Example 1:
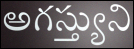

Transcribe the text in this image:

అగస్త్యుని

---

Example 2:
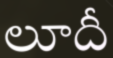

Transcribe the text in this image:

లూదీ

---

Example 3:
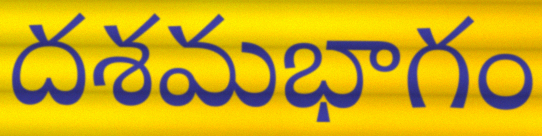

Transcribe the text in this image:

దశమభాగం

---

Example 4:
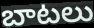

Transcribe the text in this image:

బాటలు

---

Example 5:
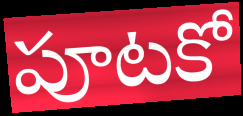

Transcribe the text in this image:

పూటకో